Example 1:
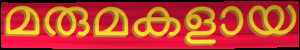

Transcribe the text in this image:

മരുമകളായ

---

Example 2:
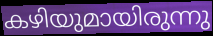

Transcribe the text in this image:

കഴിയുമായിരുന്നു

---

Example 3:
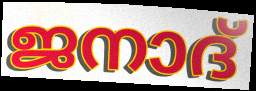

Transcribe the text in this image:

ജനാദ്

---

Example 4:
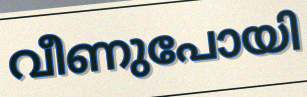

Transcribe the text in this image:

വീണുപോയി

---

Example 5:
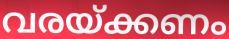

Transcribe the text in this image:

വരയ്ക്കണം